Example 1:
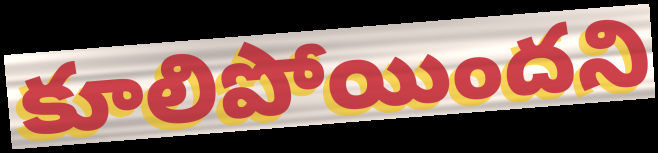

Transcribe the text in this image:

కూలిపోయిందని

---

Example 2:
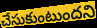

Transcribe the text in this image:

చేసుకుంటుందని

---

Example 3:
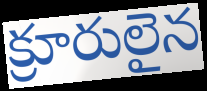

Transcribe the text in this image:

క్రూరులైన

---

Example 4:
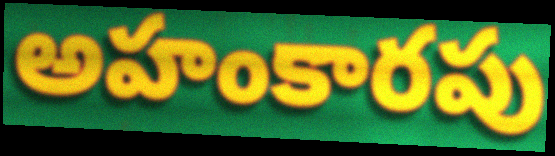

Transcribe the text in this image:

అహంకారపు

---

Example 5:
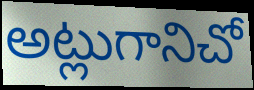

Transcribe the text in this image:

అట్లుగానిచో